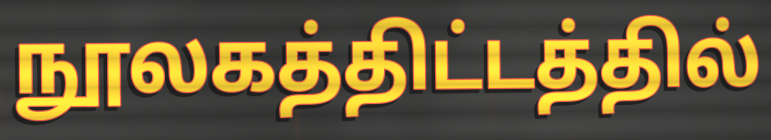
நூலகத்திட்டத்தில்